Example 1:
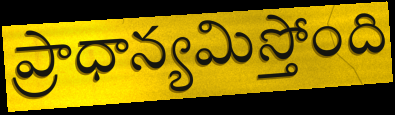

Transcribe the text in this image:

ప్రాధాన్యమిస్తోంది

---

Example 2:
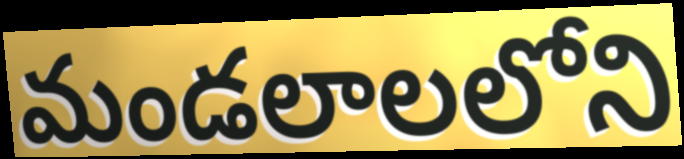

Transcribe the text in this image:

మండలాలలోని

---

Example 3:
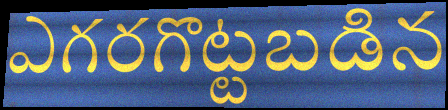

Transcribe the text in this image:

ఎగరగొట్టబడిన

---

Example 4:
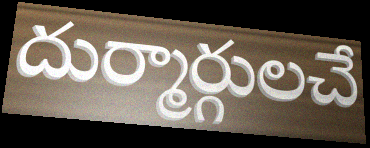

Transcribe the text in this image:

దుర్మార్గులచే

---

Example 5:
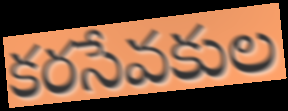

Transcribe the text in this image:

కరసేవకుల